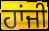
ਹਾਂਜੀ